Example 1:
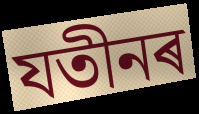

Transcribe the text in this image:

যতীনৰ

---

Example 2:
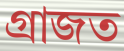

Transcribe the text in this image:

গ্ৰাজত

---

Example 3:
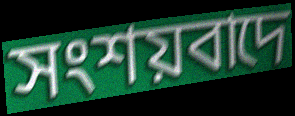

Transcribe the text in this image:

সংশয়বাদে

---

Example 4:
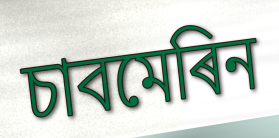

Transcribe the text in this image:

চাবমেৰিন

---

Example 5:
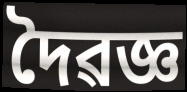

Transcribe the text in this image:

দৈৱজ্ঞ